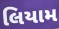
લિયામ